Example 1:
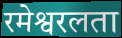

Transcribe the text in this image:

रमेश्वरलता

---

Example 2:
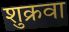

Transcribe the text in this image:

शुक्रवा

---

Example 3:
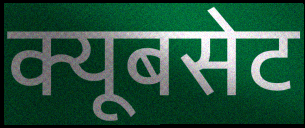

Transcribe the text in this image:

क्यूबसेट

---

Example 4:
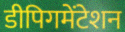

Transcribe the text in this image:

डीपिगमेंटेशन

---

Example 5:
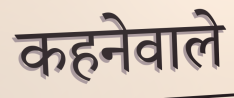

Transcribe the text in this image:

कहनेवाले